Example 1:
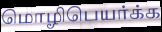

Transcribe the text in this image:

மொழிபெயர்க்க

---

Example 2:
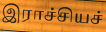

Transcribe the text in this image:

இராச்சியச்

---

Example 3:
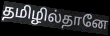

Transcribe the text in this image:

தமிழில்தானே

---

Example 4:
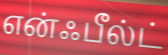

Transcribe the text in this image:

என்ஃபீல்ட்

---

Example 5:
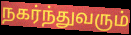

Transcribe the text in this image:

நகர்ந்துவரும்